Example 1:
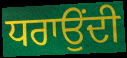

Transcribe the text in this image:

ਧਰਾਉਂਦੀ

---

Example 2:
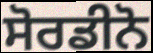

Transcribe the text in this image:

ਸੋਰਡੀਨੋ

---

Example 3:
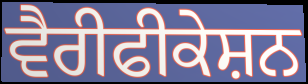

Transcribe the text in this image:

ਵੈਰੀਫੀਕੇਸ਼ਨ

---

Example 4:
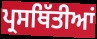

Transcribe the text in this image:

ਪ੍ਰਸਥਿੱਤੀਆਂ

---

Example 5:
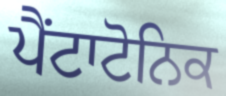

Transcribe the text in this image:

ਪੈਂਟਾਟੋਨਿਕ